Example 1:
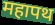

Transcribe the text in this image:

महापथ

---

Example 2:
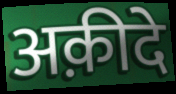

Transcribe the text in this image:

अक़ीदे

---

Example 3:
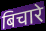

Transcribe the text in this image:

बिचारे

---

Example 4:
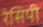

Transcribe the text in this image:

रेसिपी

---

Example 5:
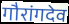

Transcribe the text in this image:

गौरांगदेव